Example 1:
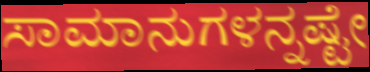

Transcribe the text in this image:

ಸಾಮಾನುಗಳನ್ನಷ್ಟೇ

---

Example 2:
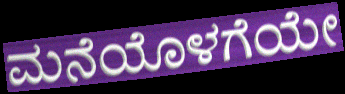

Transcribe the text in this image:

ಮನೆಯೊಳಗೆಯೇ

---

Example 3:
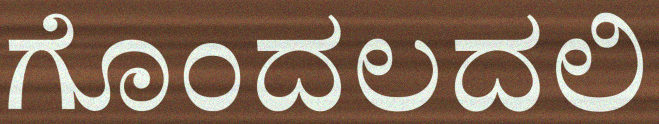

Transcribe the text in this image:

ಗೊಂದಲದಲಿ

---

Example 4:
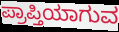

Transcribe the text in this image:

ಪ್ರಾಪ್ತಿಯಾಗುವ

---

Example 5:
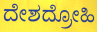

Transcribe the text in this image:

ದೇಶದ್ರೋಹಿ